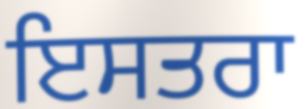
ਇਸਤਰਾ